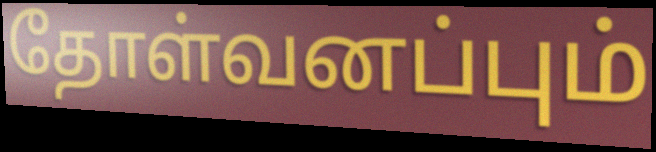
தோள்வனப்பும்